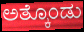
ಅತ್ಕೊಂಡು